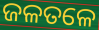
ଜଳତଳେ